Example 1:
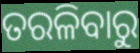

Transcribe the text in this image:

ତରଳିବାରୁ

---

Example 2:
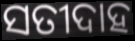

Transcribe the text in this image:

ସତୀଦାହ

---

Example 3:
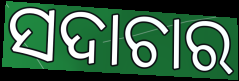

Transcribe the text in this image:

ସଦାଚାର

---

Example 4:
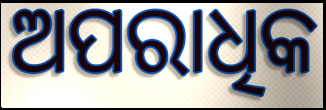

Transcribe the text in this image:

ଅପରାଧିକ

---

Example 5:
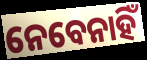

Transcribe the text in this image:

ନେବେନାହିଁ